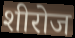
शीरोज